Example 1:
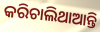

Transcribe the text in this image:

କରିଚାଲିଥାଆନ୍ତି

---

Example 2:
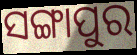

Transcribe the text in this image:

ସଙ୍ଗାପୁର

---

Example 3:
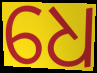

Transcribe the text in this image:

ଧେ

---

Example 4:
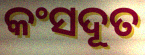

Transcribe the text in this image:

କଂସଦୂତ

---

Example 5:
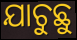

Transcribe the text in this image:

ଯାଚୁଛୁ